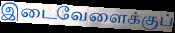
இடைவேளைக்குப்